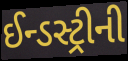
ઈન્ડસ્ટ્રીની